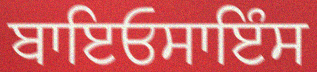
ਬਾਇਓਸਾਇੰਸ